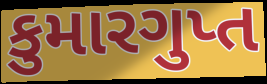
કુમારગુપ્ત